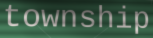
township